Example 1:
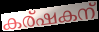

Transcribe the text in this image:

കര്ഷകന്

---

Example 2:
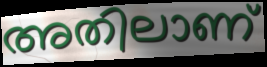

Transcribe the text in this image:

അതിലാണ്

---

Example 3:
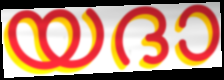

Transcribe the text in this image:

യദാ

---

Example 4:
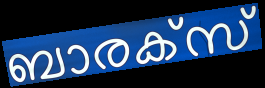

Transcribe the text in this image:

ബാരക്സ്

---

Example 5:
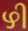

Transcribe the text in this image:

ഴി